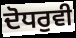
ਦੋਧਰੁਵੀ